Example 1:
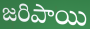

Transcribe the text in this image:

జరిపాయి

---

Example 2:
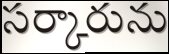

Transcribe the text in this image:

సర్కారును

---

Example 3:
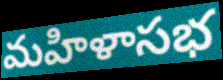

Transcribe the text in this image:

మహిళాసభ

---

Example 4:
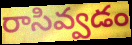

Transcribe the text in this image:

రాసివ్వడం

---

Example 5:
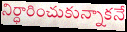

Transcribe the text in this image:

నిర్ధారించుకున్నాకనే